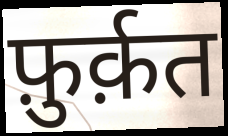
फ़ुर्क़त